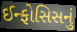
ઈન્ફોસિસનું